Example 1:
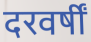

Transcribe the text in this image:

दरवर्षीं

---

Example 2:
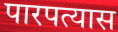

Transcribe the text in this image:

पारपत्यास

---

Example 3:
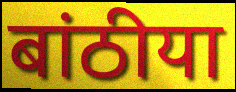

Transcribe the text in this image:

बांठीया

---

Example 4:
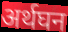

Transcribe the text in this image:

अर्थघन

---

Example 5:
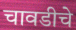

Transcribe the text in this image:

चावडीचे